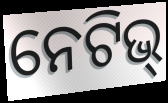
ନେଟିଭ୍